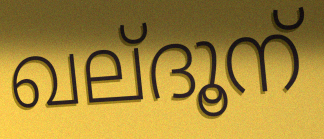
ഖല്ദൂന്